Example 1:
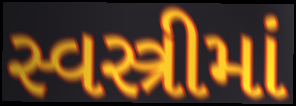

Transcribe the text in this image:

સ્વસ્ત્રીમાં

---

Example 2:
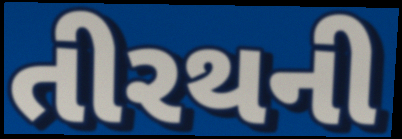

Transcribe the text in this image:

તીરથની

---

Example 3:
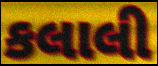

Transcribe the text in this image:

કલાલી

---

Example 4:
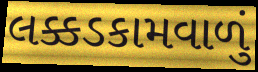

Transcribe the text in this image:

લક્કડકામવાળું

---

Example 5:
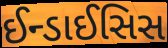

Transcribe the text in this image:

ઈન્ડાઈસિસ